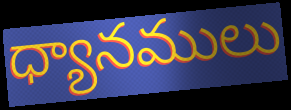
ధ్యానములు